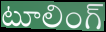
టూలింగ్